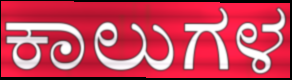
ಕಾಲುಗಳ